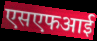
एसएफआई